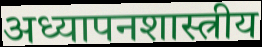
अध्यापनशास्त्रीय